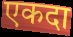
एकदा